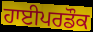
ਹਾਈਪਰਡੌਕ